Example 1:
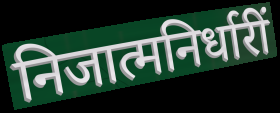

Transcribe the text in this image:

निजात्मनिर्धारीं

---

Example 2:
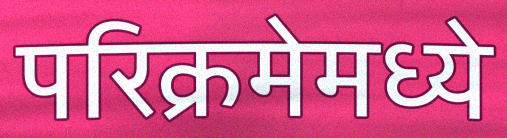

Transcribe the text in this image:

परिक्रमेमध्ये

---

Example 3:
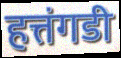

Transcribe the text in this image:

हत्तंगडी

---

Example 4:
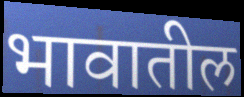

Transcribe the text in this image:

भावातील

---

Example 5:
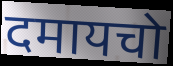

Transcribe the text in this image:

दमायचो